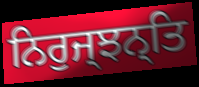
ਨਿਰੁਜ੍ਝਨ੍ਤਿ